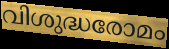
വിശുദ്ധരോമം